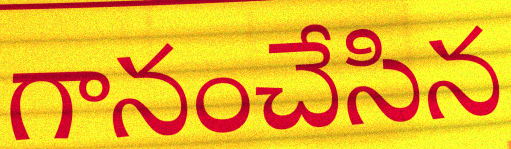
గానంచేసిన